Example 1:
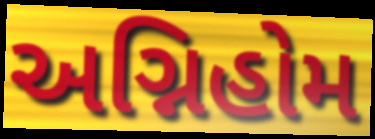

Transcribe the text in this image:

અગ્નિહોમ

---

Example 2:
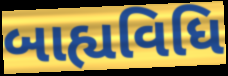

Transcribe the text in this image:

બાહ્યવિધિ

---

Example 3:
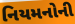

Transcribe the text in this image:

નિયમનોની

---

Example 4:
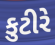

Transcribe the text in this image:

કુટીરે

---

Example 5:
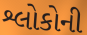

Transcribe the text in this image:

શ્લોકોની